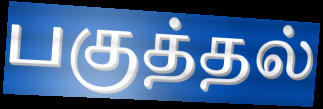
பகுத்தல்